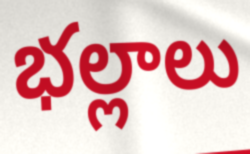
భల్లాలు